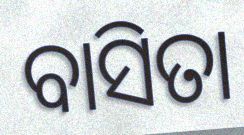
ବାସିତା